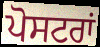
ਪੋਸਟਰਾਂ